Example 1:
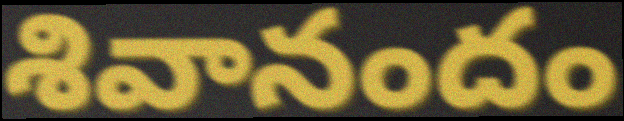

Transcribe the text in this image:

శివానందం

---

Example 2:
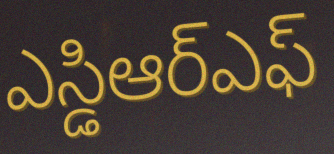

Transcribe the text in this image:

ఎస్డిఆర్ఎఫ్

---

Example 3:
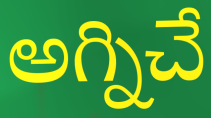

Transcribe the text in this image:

అగ్నిచే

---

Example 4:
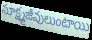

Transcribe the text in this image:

సూక్ష్మజీవులుంటాయి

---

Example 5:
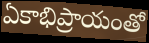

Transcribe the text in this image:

ఏకాభిప్రాయంతో